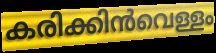
കരിക്കിൻവെള്ളം